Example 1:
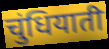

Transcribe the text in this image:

चुंधियाती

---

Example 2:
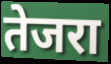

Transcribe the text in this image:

तेजरा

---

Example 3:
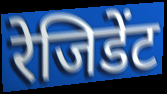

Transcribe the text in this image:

रेजिडेंट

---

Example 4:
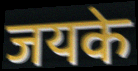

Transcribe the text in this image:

जयके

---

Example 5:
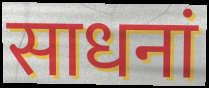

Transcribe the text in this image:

साधनां